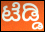
ಟೆಡ್ಡಿ